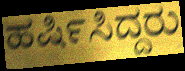
ಹರ್ಷಿಸಿದ್ದರು